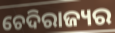
ଚେଦିରାଜ୍ୟର